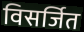
विसर्जित